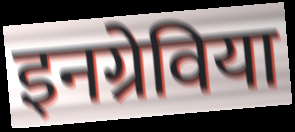
इनग्रेविया